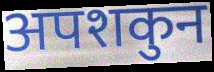
अपशकुन